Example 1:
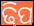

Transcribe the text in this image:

ଢିପ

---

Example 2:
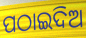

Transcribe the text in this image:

ପଠାଇଦିଅ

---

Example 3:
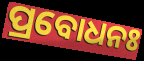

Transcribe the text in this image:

ପ୍ରବୋଧନଃ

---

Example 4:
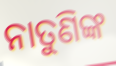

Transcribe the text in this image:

ନାତୁଣିଙ୍କ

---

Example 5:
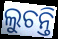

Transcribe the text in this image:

ଲୁଚନ୍ତି